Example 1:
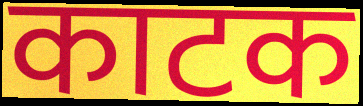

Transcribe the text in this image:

काटक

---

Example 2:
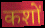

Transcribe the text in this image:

कशों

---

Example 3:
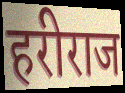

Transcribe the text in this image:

हरीराज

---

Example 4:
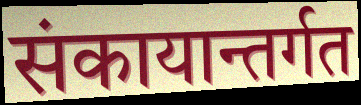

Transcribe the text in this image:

संकायान्तर्गत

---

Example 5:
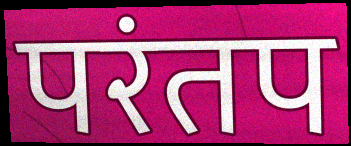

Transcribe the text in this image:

परंतप